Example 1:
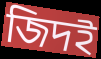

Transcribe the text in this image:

জিদই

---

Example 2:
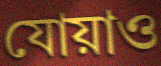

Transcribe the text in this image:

যোয়াও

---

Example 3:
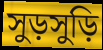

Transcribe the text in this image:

সুড়সুড়ি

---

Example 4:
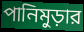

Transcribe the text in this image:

পানিমুড়ার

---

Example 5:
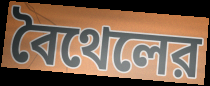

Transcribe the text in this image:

বৈথেলের